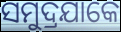
ସମୁଦ୍ରଯାକେ